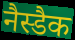
नैस्डैक